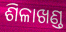
ଶିଳାଖଣ୍ଡ